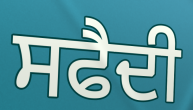
ਸਫੈਦੀ